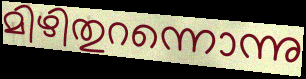
മിഴിതുറന്നൊന്നു